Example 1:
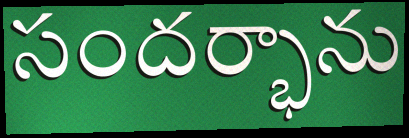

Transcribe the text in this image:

సందర్భాను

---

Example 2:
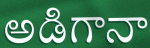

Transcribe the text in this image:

అడిగానా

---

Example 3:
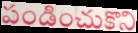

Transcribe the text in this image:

పండించుకొని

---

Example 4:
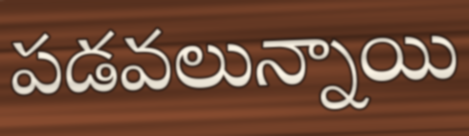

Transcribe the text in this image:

పడవలున్నాయి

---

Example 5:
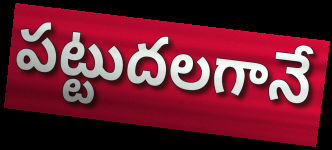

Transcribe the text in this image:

పట్టుదలగానే